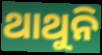
ଥାଥୁନି